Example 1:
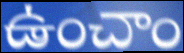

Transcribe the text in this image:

ఉంచాం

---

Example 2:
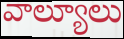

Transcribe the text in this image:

వాల్యూలు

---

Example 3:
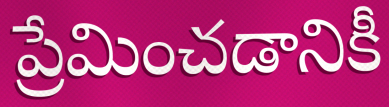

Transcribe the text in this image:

ప్రేమించడానికీ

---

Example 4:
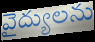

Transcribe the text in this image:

వైద్యులను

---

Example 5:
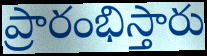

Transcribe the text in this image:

ప్రారంభిస్తారు